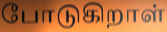
போடுகிறாள்